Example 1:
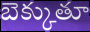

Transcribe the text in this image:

బెక్కుతూ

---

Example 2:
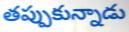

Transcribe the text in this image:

తప్పుకున్నాడు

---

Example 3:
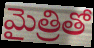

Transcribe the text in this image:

మైత్రితో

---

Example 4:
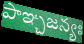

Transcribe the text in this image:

పాఞ్చజన్యః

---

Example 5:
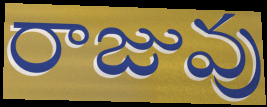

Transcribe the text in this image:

రాజువు